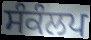
ਸੰਕੰਲਪ